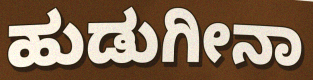
ಹುಡುಗೀನಾ